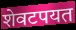
शेवटपयत